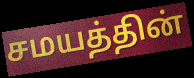
சமயத்தின்